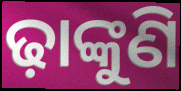
ଢ଼ାଙ୍କୁଣି